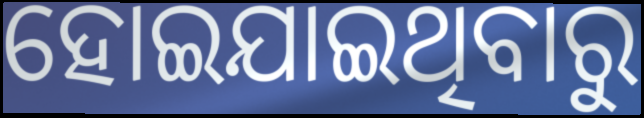
ହୋଇଯାଇଥିବାରୁ